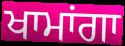
ਖਾਮਾਂਗਾ